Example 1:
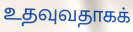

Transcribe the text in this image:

உதவுவதாகக்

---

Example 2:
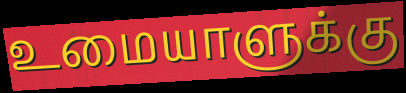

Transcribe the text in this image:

உமையாளுக்கு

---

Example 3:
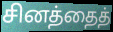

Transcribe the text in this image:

சினத்தைத்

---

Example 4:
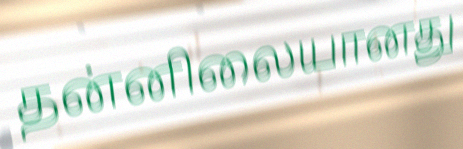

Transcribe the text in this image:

தன்னிலையானது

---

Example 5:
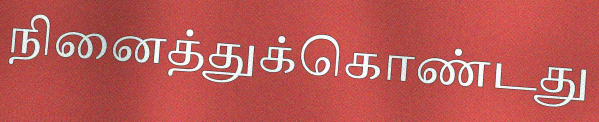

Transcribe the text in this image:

நினைத்துக்கொண்டது